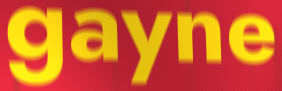
gayne